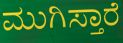
ಮುಗಿಸ್ತಾರೆ